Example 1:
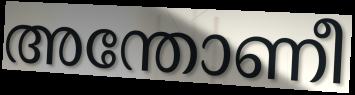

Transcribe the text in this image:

അന്തോണീ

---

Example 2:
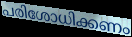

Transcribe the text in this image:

പരിശോധിക്കണം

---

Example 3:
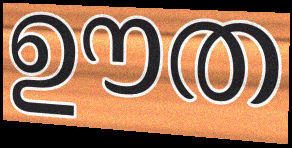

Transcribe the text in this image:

ഊത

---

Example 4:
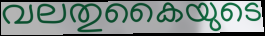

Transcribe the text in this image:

വലതുകൈയുടെ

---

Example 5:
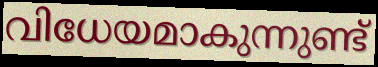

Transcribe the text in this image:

വിധേയമാകുന്നുണ്ട്